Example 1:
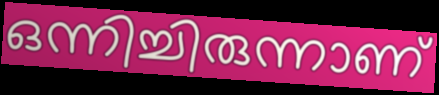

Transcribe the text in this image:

ഒന്നിച്ചിരുന്നാണ്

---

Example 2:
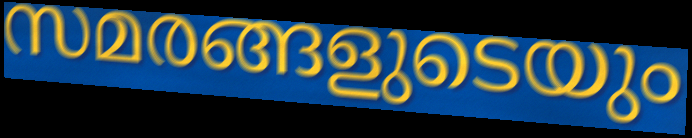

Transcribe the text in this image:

സമരങ്ങളുടെയും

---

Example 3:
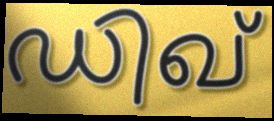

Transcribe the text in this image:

ഡിഖ്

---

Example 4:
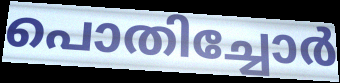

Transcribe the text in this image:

പൊതിച്ചോർ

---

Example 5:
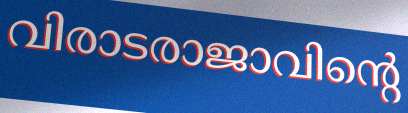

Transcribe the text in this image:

വിരാടരാജാവിന്റെ